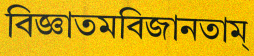
বিজ্ঞাতমবিজানতাম্